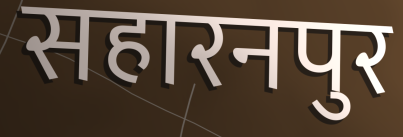
सहारनपुर